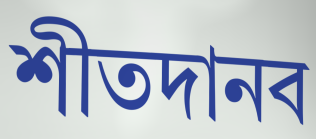
শীতদানব